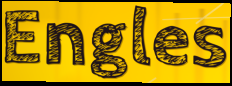
Engles